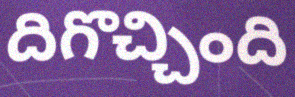
దిగొచ్చింది